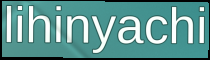
lihinyachi